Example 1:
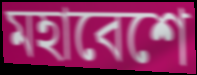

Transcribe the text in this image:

মহাবেশে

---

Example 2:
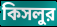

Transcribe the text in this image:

কিসলুর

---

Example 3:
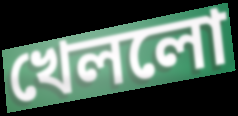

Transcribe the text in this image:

খেললো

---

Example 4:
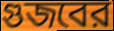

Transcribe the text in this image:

গুজবের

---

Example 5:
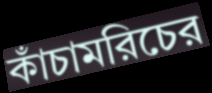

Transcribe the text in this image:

কাঁচামরিচের